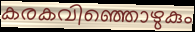
കരകവിഞ്ഞൊഴുകും